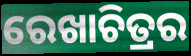
ରେଖାଚିତ୍ରର